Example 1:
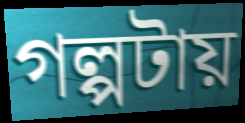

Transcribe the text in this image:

গল্পটায়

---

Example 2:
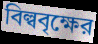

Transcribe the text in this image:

বিল্ববৃক্ষের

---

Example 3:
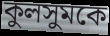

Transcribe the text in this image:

কুলসুমকে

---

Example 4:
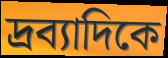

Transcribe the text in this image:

দ্রব্যাদিকে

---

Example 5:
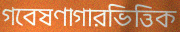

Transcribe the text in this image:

গবেষণাগারভিত্তিক